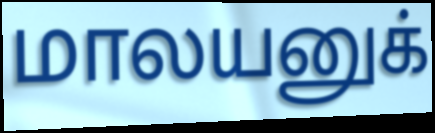
மாலயனுக்